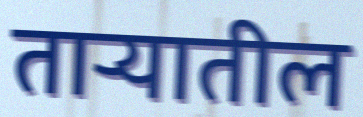
ताऱ्यातील